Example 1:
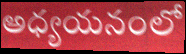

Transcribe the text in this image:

అధ్యయనంలో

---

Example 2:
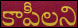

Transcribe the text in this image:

కాపీలని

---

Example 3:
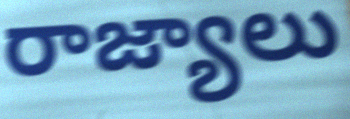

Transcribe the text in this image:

రాజ్యాలు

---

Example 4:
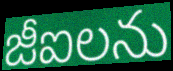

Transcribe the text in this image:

జీఐలను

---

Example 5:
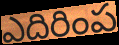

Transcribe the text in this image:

ఎదిరింప